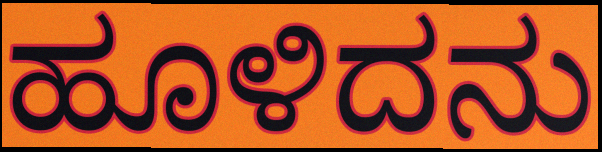
ಹೂಳಿದನು